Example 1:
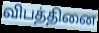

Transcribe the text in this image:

விபத்தினை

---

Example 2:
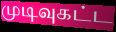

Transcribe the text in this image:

முடிவுகட்ட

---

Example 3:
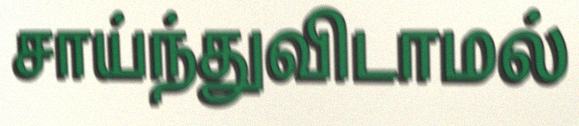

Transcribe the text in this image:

சாய்ந்துவிடாமல்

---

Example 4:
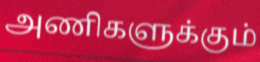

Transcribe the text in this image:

அணிகளுக்கும்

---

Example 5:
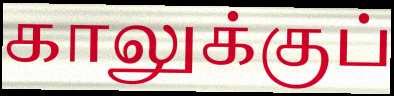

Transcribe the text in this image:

காலுக்குப்